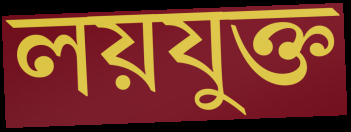
লয়যুক্ত